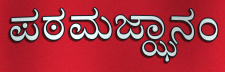
ಪಠಮಜ್ಝಾನಂ